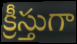
క్రీస్తుగా